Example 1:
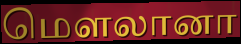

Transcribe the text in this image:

மௌலானா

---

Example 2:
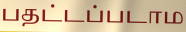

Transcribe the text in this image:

பதட்டப்படாம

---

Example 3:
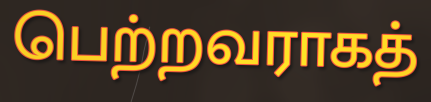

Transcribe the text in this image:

பெற்றவராகத்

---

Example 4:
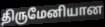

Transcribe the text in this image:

திருமேனியான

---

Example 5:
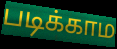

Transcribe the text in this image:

படிக்காம